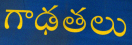
గాఢతలు